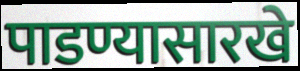
पाडण्यासारखे